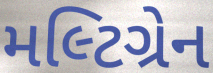
મલ્ટિગ્રેન